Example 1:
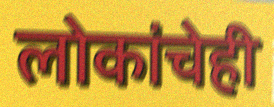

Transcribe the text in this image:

लोकांचेही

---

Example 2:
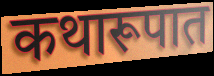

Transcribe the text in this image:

कथारूपात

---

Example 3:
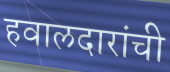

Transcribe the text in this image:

हवालदारांची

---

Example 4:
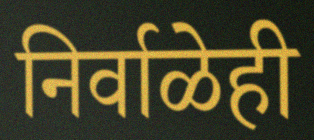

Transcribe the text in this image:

निर्वाळेही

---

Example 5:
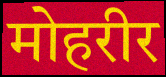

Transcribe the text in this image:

मोहरीर